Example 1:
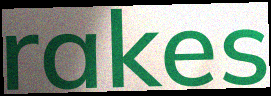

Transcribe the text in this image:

rakes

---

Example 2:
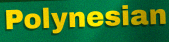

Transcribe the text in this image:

Polynesian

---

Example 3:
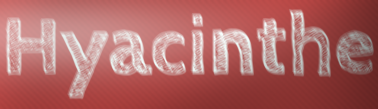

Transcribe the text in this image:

Hyacinthe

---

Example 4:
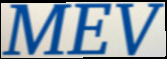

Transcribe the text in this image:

MEV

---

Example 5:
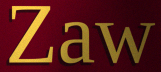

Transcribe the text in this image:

Zaw